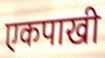
एकपाखी